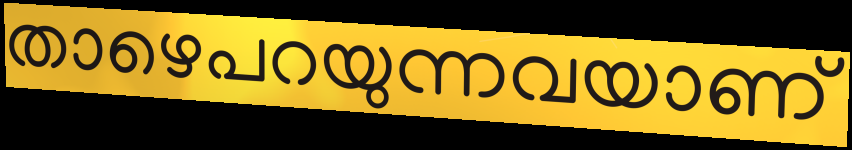
താഴെപറയുന്നവയാണ്